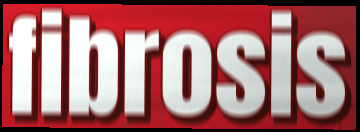
fibrosis